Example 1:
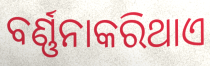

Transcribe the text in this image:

ବର୍ଣ୍ଣନାକରିଥାଏ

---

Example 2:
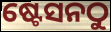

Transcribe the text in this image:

ଷ୍ଟେସନଠୁ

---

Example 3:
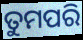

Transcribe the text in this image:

ତୁମପରି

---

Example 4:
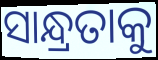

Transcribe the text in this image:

ସାନ୍ଧ୍ରତାକୁ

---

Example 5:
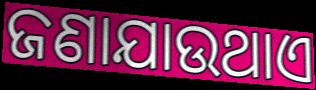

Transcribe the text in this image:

ଜଣାଯାଉଥାଏ